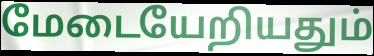
மேடையேறியதும்